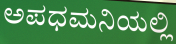
ಅಪಧಮನಿಯಲ್ಲಿ